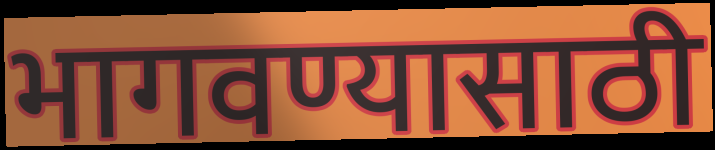
भागवण्यासाठी